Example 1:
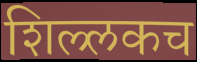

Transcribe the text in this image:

शिल्लकच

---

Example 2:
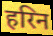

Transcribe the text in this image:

हरिन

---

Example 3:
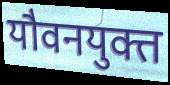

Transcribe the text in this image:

यौवनयुक्त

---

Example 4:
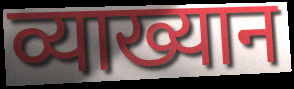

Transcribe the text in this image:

व्याख्यान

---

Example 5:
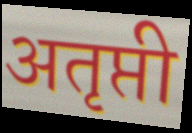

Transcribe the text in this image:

अतृप्ती